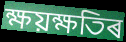
ক্ষয়ক্ষতিৰ